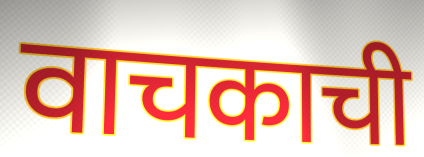
वाचकाची